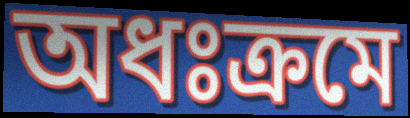
অধঃক্রমে